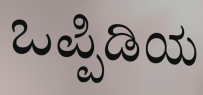
ಒಪ್ಪಿಡಿಯ